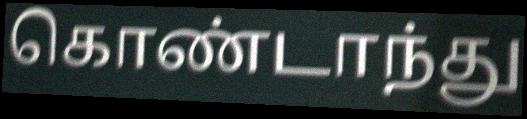
கொண்டாந்து